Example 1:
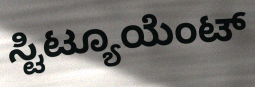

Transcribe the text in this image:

ಸ್ಟಿಟ್ಯೂಯೆಂಟ್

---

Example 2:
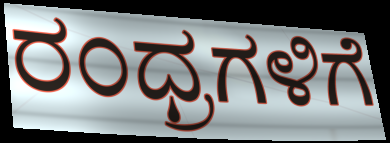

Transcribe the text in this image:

ರಂಧ್ರಗಳಿಗೆ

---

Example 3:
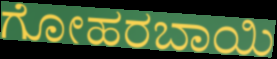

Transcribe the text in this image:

ಗೋಹರಬಾಯಿ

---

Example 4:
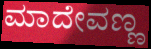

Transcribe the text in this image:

ಮಾದೇವಣ್ಣ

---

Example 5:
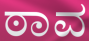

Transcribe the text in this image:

ಠಾವ